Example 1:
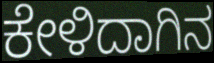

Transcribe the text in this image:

ಕೇಳಿದಾಗಿನ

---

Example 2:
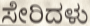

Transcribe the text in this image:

ಸೇರಿದಳು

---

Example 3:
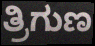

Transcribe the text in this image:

ತ್ರಿಗುಣ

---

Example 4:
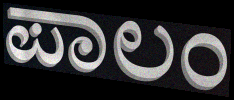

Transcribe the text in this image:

ಪಾಲಂ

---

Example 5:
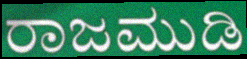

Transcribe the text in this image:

ರಾಜಮುಡಿ